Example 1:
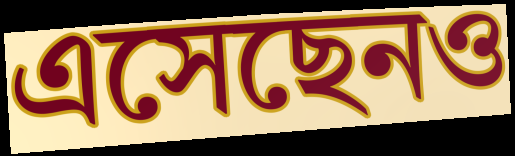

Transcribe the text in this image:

এসেছেনও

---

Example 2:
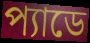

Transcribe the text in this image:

প্যাডে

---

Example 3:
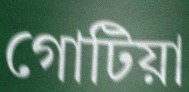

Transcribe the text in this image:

গোটিয়া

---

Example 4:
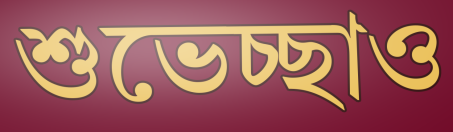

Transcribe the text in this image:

শুভেচ্ছাও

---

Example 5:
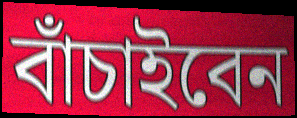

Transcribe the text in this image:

বাঁচাইবেন